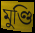
মুণ্ডি